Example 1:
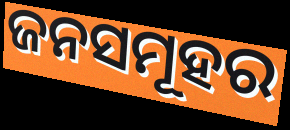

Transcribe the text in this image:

ଜନସମୂହର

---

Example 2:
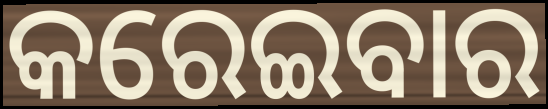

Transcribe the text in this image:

କରେଇବାର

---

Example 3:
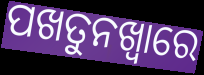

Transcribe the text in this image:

ପଖତୁନଖ୍ୱାରେ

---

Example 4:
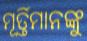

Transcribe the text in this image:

ମୂର୍ତ୍ତିମାନଙ୍କୁ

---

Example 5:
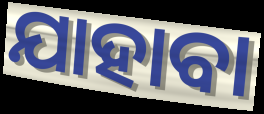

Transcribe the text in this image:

ଯାହାବା